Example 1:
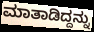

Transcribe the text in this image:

ಮಾತಾಡಿದ್ದನ್ನು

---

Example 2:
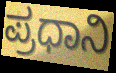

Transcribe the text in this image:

ಪ್ರಧಾನಿ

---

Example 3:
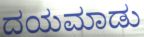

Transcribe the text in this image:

ದಯಮಾಡು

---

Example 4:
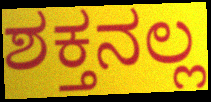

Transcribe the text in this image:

ಶಕ್ತನಲ್ಲ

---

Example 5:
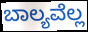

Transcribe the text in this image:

ಬಾಲ್ಯವೆಲ್ಲ